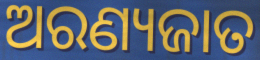
ଅରଣ୍ୟଜାତ